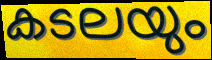
കടലയും